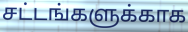
சட்டங்களுக்காக